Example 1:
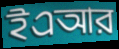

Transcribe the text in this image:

ইএআর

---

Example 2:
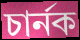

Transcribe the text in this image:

চার্নক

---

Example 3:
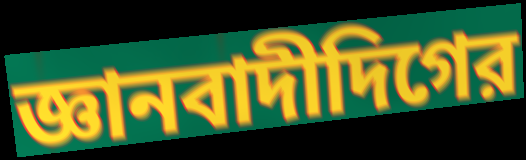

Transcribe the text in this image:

জ্ঞানবাদীদিগের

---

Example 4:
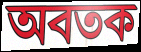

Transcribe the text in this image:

অবতক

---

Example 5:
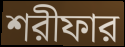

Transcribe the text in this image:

শরীফার